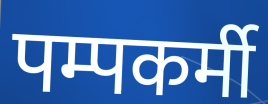
पम्पकर्मी